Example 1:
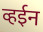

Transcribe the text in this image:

व्हईन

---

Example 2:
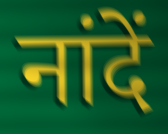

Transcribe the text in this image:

नांदें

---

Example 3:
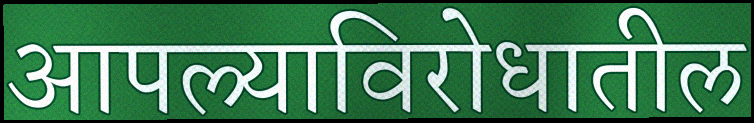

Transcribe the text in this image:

आपल्याविरोधातील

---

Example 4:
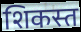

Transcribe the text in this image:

शिकस्त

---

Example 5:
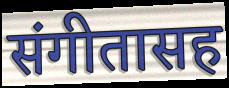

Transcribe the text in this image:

संगीतासह